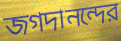
জগদানন্দের